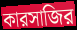
কারসাজির